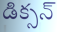
డిక్సన్